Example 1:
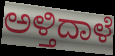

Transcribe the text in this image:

ಅಳ್ತಿದಾಳೆ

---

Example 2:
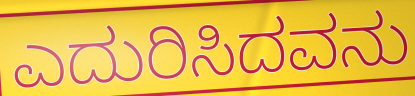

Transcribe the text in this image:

ಎದುರಿಸಿದವನು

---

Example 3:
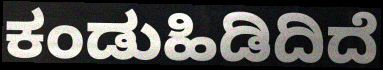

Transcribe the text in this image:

ಕಂಡುಹಿಡಿದಿದೆ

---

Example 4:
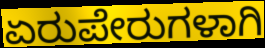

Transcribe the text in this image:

ಏರುಪೇರುಗಳಾಗಿ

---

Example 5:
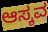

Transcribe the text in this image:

ಆಸ್ಕವ